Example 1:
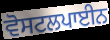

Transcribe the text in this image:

ਵੋਸਟਲਪਾਈਨ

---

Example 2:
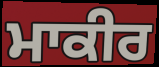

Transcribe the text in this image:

ਮਾਕੀਰ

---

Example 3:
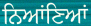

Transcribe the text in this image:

ਨਿਆਂਣਿਆਂ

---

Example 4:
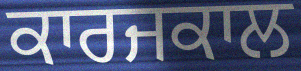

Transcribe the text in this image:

ਕਾਰਜਕਾਲ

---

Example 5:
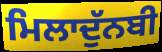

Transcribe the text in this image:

ਮਿਲਾਦੁੱਨਬੀ